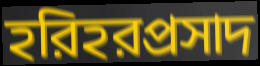
হরিহরপ্রসাদ